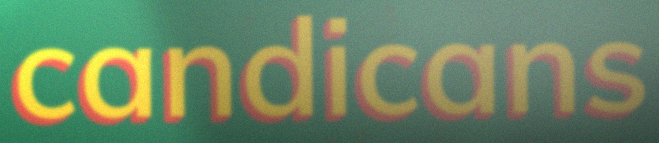
candicans